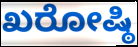
ಖರೋಷ್ಠಿ